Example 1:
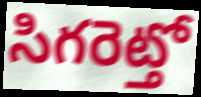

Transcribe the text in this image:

సిగరెట్తో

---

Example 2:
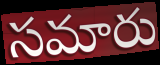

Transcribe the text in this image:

సమారు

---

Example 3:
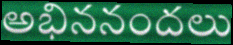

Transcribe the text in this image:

అభిననందలు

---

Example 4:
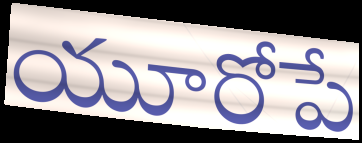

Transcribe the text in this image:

యూరోపే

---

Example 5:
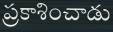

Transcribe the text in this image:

ప్రకాశించాడు